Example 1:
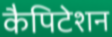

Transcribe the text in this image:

कैपिटेशन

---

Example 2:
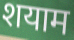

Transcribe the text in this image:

शयाम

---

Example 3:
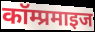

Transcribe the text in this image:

कॉम्प्रमाइज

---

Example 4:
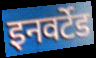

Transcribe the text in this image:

इनवर्टेड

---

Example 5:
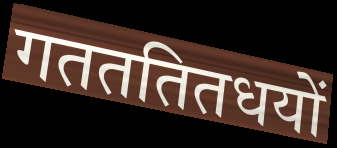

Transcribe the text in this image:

गतततितधयों